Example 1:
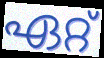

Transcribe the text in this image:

ഏറ്റ്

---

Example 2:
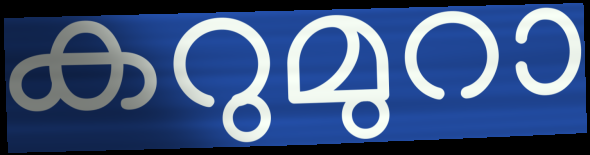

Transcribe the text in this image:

കറുമുറാ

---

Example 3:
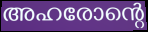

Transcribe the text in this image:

അഹരോന്റെ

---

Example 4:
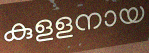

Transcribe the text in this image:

കുളളനായ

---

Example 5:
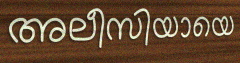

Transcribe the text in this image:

അലീസിയായെ